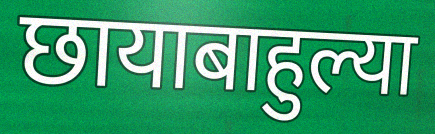
छायाबाहुल्या